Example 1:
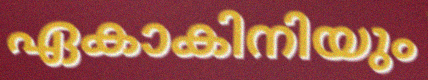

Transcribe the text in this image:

ഏകാകിനിയും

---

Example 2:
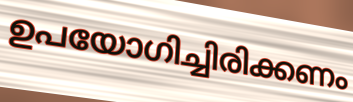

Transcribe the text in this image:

ഉപയോഗിച്ചിരിക്കണം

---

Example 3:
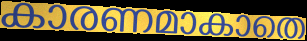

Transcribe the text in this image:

കാരണമാകാതെ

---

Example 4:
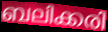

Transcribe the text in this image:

ബലിക്കരി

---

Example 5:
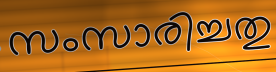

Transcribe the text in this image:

സംസാരിച്ചതു